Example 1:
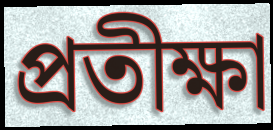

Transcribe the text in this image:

প্রতীক্ষা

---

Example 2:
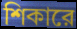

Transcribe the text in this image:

শিকারে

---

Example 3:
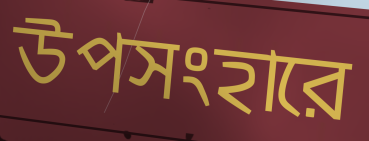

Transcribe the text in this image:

উপসংহারে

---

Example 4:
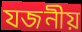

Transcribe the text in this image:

যজনীয়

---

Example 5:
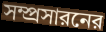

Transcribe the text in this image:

সম্প্রসারনের